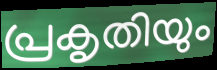
പ്രകൃതിയും